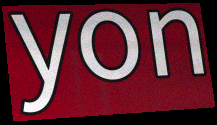
yon